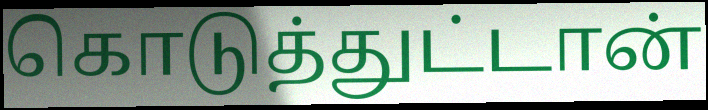
கொடுத்துட்டான்